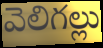
వెలిగల్లు